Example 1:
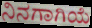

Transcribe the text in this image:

ನಿನಗಾಗಿಯೆ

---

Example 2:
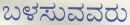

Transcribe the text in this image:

ಬಳಸುವವರು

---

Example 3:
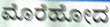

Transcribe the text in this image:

ಮೊರೆಹೋದ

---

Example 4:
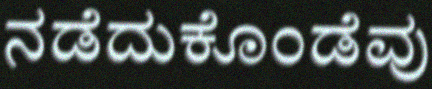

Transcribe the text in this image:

ನಡೆದುಕೊಂಡೆವು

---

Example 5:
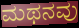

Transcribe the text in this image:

ಮಥನವು